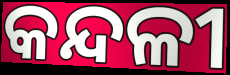
କନ୍ଦଳୀ